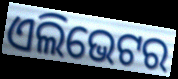
ଏଲିଭେଟର